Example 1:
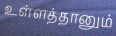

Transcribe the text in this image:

உள்ளத்தானும்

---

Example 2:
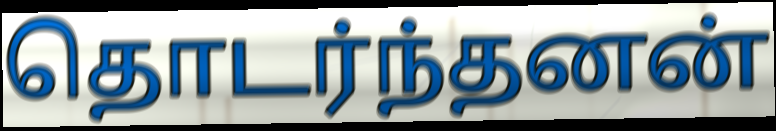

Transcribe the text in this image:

தொடர்ந்தனன்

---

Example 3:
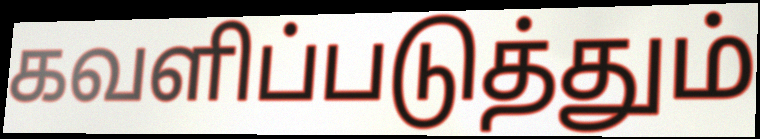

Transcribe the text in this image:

கவளிப்படுத்தும்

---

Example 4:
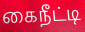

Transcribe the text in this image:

கைநீட்டி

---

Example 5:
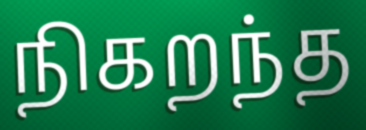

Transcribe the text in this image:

நிகறந்த